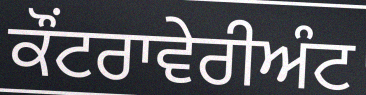
ਕੌਂਟਰਾਵੇਰੀਅੰਟ